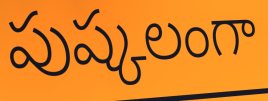
పుష్కలంగా